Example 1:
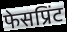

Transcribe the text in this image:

फेसप्रिंट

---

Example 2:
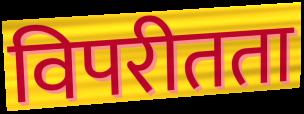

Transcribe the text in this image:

विपरीतता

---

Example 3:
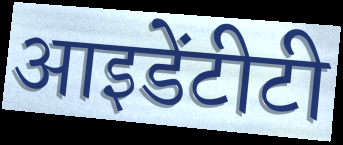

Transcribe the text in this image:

आइडेंटीटी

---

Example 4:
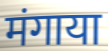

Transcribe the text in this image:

मंगाया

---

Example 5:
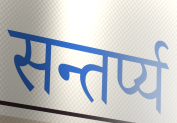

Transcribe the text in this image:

सन्तर्प्य